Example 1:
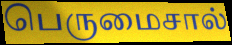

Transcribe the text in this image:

பெருமைசால்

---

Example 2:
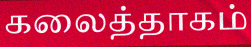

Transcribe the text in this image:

கலைத்தாகம்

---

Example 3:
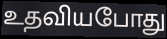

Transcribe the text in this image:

உதவியபோது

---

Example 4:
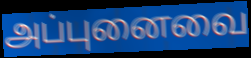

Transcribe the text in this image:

அப்புனைவை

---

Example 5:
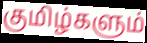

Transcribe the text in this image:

குமிழ்களும்